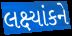
લક્ષ્યાંકને